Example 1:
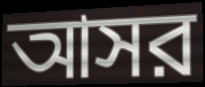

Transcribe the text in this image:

আসর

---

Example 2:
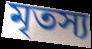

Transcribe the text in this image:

মৃতস্য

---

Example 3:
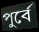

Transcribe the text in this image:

পুর্বে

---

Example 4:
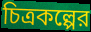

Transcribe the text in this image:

চিত্রকল্পের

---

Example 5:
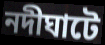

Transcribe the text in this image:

নদীঘাটে